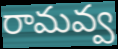
రామవ్వ